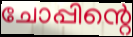
ചോപ്പിന്റെ